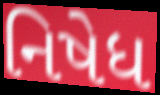
નિષેધ